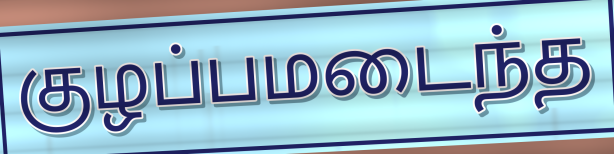
குழப்பமடைந்த